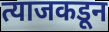
त्याजकडून